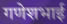
गणेशभाई